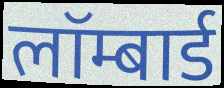
लॉम्बार्ड